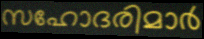
സഹോദരിമാർ